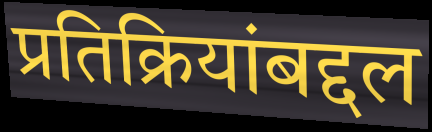
प्रतिक्रियांबद्दल